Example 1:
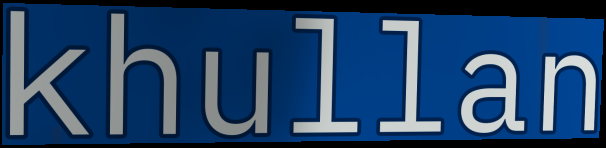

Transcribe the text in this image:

khullan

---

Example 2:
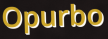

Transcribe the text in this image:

Opurbo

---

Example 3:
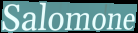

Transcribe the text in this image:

Salomone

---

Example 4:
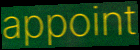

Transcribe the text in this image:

appoint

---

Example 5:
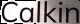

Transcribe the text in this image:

Calkin